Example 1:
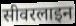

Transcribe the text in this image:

सीवरलाइन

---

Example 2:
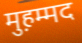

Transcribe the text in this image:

मुह़म्मद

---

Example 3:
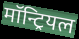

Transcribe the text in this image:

मॉन्ट्रियल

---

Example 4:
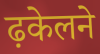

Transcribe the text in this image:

ढ़केलने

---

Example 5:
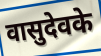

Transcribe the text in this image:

वासुदेवके